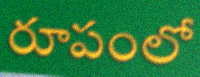
రూపంలో